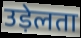
उड़ेलता